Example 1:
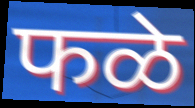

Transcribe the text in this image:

फळे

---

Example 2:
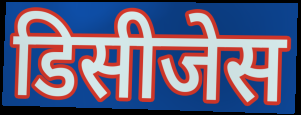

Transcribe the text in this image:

डिसीजेस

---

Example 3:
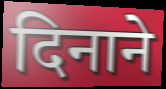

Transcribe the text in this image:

दिनाने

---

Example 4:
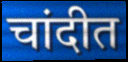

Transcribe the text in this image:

चांदीत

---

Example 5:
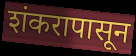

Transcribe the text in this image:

शंकरापासून